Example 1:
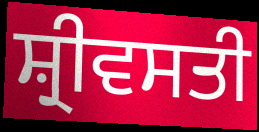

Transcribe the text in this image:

ਸ਼੍ਰੀਵਸਤੀ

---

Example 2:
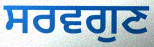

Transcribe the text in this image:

ਸਰਵਗੁਣ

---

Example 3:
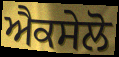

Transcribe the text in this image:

ਐਕਸੇਲੋ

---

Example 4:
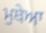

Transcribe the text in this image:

ਮੁਥੇਆ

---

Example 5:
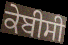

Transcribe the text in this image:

ਕੇਬੀਸੀ